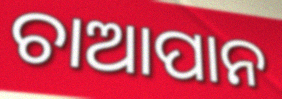
ଚାଆପାନ